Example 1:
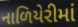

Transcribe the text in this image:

નાળિયેરીમાં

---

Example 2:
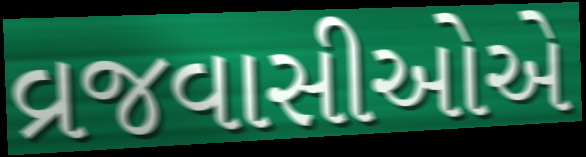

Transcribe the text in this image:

વ્રજવાસીઓએ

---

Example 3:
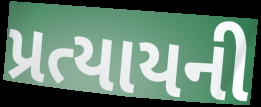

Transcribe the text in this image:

પ્રત્યાયની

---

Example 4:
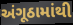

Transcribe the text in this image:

અંગૂઠામાંથી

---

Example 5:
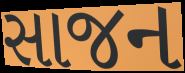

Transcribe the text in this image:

સાજન